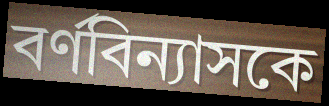
বর্ণবিন্যাসকে